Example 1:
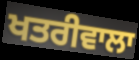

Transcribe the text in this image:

ਖਤਰੀਵਾਲਾ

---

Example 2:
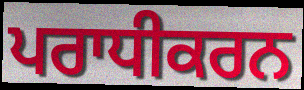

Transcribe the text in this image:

ਪਰਾਧੀਕਰਨ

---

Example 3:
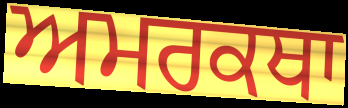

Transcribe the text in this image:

ਅਮਰਕਥਾ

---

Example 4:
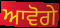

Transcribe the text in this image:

ਆਵੋਗੇ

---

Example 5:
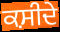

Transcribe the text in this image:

ਕ਼ਸੀਦੇ